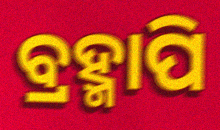
ବ୍ରହ୍ମାପି